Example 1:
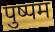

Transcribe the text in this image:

पुष्पम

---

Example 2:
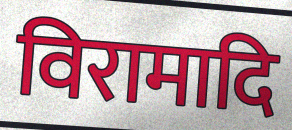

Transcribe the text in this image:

विरामादि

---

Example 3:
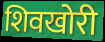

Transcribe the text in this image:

शिवखोरी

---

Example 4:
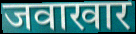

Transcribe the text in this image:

जवाखार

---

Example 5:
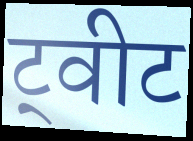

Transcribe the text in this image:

ट्‍वीट